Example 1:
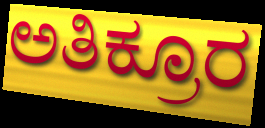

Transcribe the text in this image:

ಅತಿಕ್ರೂರ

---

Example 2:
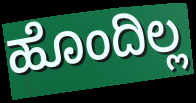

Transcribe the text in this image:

ಹೊಂದಿಲ್ಲ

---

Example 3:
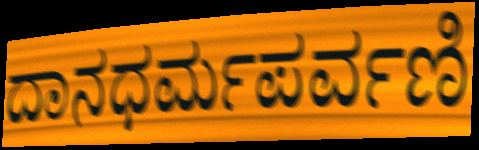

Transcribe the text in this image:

ದಾನಧರ್ಮಪರ್ವಣಿ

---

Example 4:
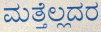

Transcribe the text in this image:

ಮತ್ತೆಲ್ಲದರ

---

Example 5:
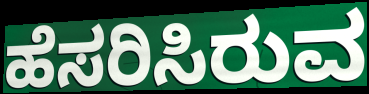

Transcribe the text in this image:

ಹೆಸರಿಸಿರುವ